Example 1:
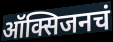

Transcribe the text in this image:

ऑक्सिजनचं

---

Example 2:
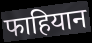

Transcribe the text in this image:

फाहियान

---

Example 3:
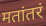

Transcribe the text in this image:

मतांतरं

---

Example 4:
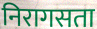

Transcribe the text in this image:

निरागसता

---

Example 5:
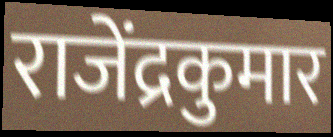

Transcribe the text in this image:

राजेंद्रकुमार